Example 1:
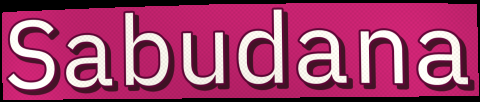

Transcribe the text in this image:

Sabudana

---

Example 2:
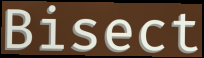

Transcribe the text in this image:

Bisect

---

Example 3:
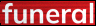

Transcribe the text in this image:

funeral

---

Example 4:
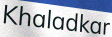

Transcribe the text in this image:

Khaladkar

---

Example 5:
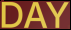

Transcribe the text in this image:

DAY